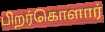
பிறர்கொளார்